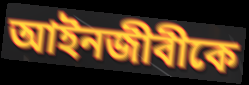
আইনজীবীকে